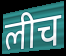
लीच